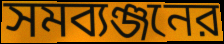
সমব্যঞ্জনের